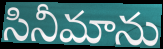
సినీమాను